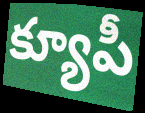
క్యూపీ